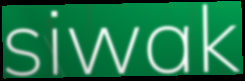
siwak